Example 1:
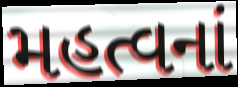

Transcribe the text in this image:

મહત્વનાં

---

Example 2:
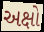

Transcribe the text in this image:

અક્ષો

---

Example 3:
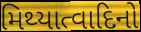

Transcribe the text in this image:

મિથ્યાત્વાદિનો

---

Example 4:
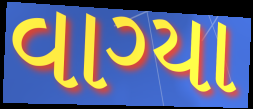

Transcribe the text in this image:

વાગ્યા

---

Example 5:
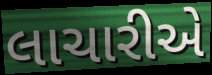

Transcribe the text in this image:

લાચારીએ